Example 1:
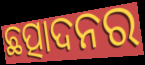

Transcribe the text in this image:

ଛତ୍ପାଦନର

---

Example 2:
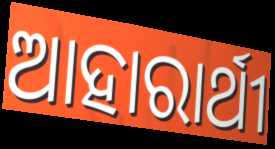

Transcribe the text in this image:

ଆହାରାର୍ଥୀ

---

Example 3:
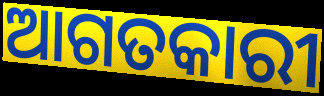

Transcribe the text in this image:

ଆଗତକାରୀ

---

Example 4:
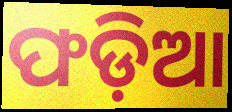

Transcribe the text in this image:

ଫଡ଼ିଆ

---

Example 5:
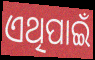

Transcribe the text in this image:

ଏଥିପାଇଁ